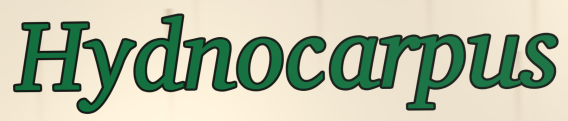
Hydnocarpus